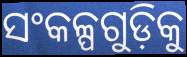
ସଂକଳ୍ପଗୁଡ଼ିକୁ